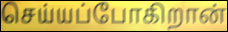
செய்யப்போகிறான்